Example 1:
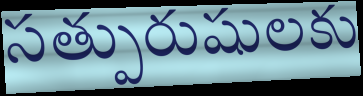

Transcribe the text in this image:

సత్పురుషులకు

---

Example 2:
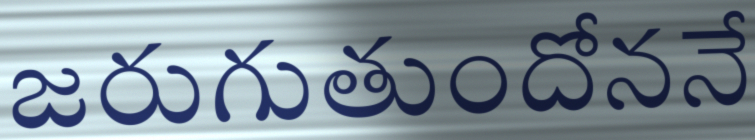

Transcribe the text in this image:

జరుగుతుందోననే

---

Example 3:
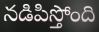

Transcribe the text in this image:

నడిపిస్తోంది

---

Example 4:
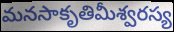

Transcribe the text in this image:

మనసాకృతిమీశ్వరస్య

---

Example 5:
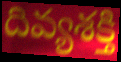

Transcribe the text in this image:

దివ్యశక్తి